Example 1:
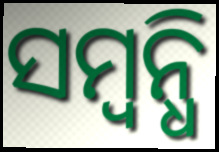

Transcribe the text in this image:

ସମ୍ବନ୍ଧି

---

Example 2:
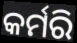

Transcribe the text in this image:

କର୍ମରି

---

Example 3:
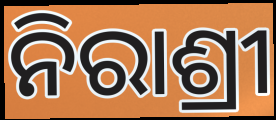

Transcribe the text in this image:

ନିରାଶ୍ରୀ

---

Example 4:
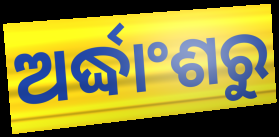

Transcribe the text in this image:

ଅର୍ଦ୍ଧାଂଶରୁ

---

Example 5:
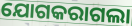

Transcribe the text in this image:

ଯୋଗକରାଗଲା